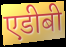
एडीबी